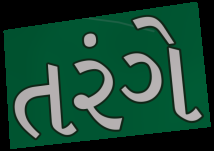
તરંગે